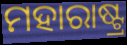
ମହାରାଷ୍ଟ୍ର